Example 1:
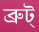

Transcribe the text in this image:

ব্রুট্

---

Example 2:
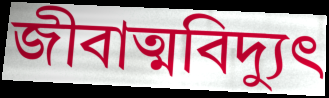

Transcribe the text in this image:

জীবাত্মবিদ্যুৎ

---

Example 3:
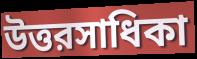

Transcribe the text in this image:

উত্তরসাধিকা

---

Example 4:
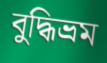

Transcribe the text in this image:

বুদ্ধিভ্রম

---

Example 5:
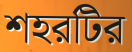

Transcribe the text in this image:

শহরটির